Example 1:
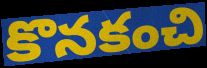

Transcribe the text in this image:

కొనకంచి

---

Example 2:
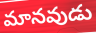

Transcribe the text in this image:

మానవుడు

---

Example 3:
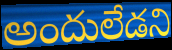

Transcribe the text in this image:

అందులేడని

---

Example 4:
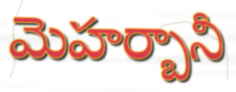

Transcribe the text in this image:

మెహర్బానీ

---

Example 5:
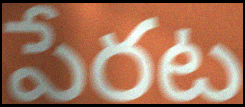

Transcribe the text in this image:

పేరట